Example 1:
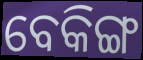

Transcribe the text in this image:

ବେକିଙ୍ଗ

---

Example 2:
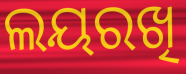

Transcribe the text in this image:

ଲୟରଖି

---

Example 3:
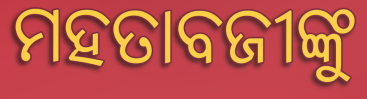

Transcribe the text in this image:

ମହତାବଜୀଙ୍କୁ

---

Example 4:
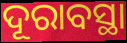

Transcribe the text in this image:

ଦୂରାବସ୍ଥା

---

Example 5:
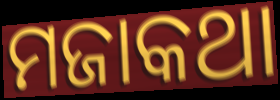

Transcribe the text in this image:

ମଜାକଥା